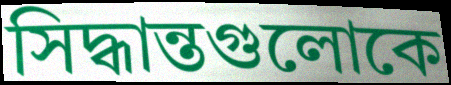
সিদ্ধান্তগুলোকে